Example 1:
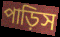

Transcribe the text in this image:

পাড়িস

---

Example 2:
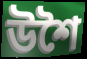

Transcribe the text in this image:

উশৈ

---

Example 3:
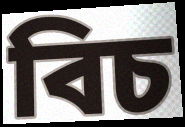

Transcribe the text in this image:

বিচ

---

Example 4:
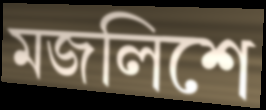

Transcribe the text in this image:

মজলিশে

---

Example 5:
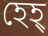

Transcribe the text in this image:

হেহ্